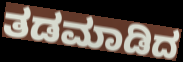
ತಡಮಾಡಿದ